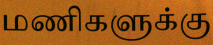
மணிகளுக்கு